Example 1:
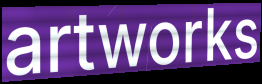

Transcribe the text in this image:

artworks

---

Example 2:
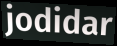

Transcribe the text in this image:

jodidar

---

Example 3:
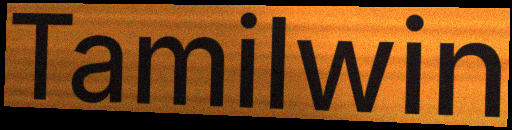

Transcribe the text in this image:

Tamilwin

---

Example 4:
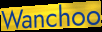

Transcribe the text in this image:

Wanchoo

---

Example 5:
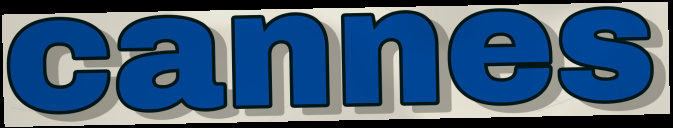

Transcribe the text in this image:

cannes